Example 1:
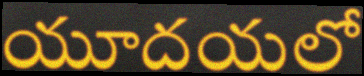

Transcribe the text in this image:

యూదయలో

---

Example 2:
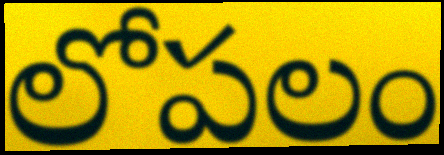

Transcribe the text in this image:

లోపలం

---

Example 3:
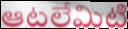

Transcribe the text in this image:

ఆటలేమిటి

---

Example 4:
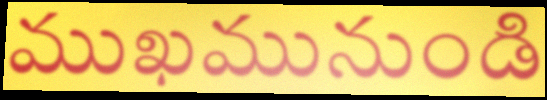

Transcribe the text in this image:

ముఖమునుండి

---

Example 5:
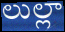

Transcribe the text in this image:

లుల్లా